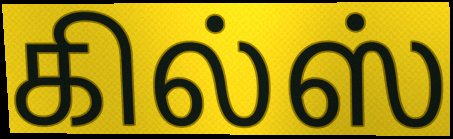
கில்ஸ்